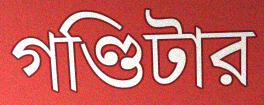
গণ্ডিটার